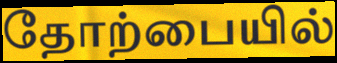
தோற்பையில்